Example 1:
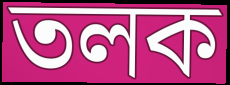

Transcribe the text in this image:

তলক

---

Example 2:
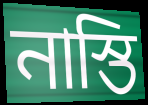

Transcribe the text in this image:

নাস্তি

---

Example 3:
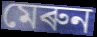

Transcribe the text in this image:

মেৰুন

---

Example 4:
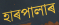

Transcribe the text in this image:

হাৰপালাৰ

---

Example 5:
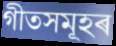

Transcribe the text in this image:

গীতসমূহৰ